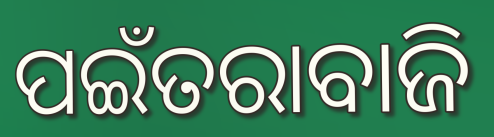
ପଇଁତରାବାଜି